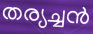
തര്യച്ചൻ